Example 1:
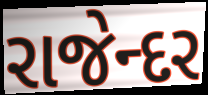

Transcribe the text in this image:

રાજેન્દર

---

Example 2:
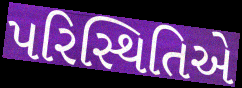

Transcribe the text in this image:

પરિસ્થિતિએ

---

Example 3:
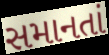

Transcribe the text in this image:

સમાનતાં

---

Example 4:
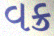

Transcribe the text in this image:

વક્ર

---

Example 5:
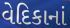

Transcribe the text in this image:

વેદિકાનાં